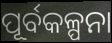
ପୂର୍ବକଳ୍ପନା